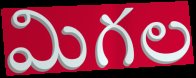
మిగల